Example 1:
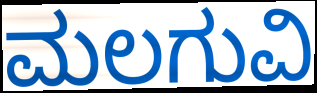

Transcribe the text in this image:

ಮಲಗುವಿ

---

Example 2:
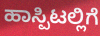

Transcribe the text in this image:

ಹಾಸ್ಪಿಟಲ್ಲಿಗೆ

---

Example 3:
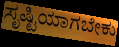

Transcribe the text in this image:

ಸೃಷ್ಟಿಯಾಗಬೇಕು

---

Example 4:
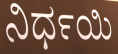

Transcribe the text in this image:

ನಿರ್ಧಯಿ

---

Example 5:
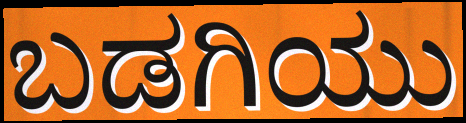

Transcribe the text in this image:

ಬಡಗಿಯು